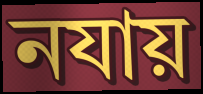
নযায়